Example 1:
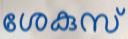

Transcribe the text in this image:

ശേകുസ്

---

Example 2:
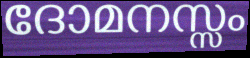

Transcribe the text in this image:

ദോമനസ്സം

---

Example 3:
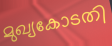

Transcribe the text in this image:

മുഖ്യകോടതി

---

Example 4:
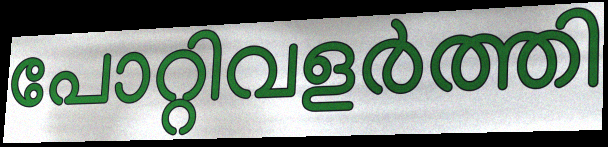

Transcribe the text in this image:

പോറ്റിവളർത്തി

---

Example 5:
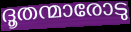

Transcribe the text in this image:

ദൂതന്മാരോടു